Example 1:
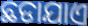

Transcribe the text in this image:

ଛଡାଯାଏ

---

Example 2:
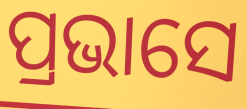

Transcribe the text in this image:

ପ୍ରଭାସେ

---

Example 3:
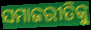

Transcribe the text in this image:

ସମାଜରୀତିକୁ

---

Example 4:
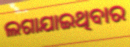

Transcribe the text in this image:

ଲଗାଯାଇଥିବାର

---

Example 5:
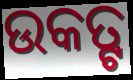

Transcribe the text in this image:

ଉକତ୍ଟ